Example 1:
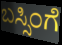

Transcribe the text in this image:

ಬಸ್ಸಿಂಗೆ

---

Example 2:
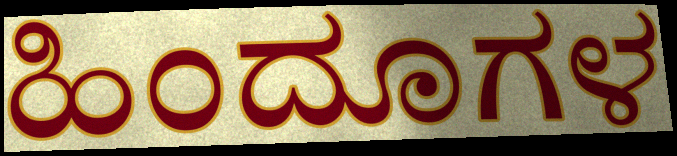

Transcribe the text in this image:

ಹಿಂದೂಗಳ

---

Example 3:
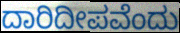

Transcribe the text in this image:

ದಾರಿದೀಪವೆಂದು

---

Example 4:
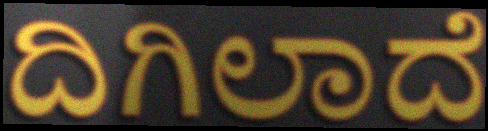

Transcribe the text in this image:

ದಿಗಿಲಾದೆ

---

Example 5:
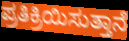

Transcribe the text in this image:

ಪ್ರತಿಕ್ರಿಯಿಸುತ್ತಾನೆ